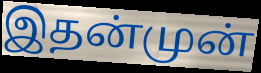
இதன்முன்